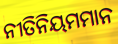
ନୀତିନିୟମମାନ